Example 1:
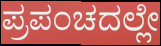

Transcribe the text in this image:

ಪ್ರಪಂಚದಲ್ಲೇ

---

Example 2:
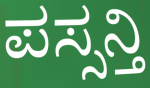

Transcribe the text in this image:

ಪಸ್ಸನ್ತಿ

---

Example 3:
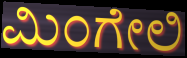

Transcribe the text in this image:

ಮಿಂಗೇಲಿ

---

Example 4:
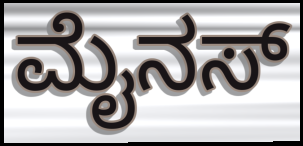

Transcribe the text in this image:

ಮೈನಸ್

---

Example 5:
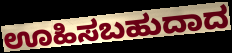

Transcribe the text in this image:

ಊಹಿಸಬಹುದಾದ